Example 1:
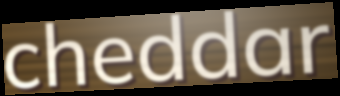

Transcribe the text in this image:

cheddar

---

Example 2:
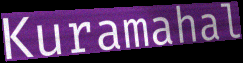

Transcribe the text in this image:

Kuramahal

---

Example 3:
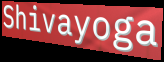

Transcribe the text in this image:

Shivayoga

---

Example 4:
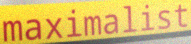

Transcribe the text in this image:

maximalist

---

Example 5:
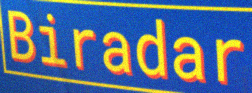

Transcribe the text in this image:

Biradar